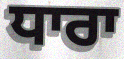
ਧਾਰਾ